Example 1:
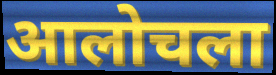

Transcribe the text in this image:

आलोचला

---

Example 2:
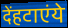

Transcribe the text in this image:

देंहटाएंये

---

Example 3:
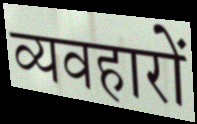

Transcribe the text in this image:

व्यवहारों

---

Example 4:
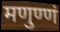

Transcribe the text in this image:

मणुण्णं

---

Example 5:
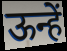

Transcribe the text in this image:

ऊन्हें